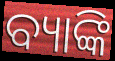
ବ୍ୟାଙ୍କି